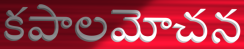
కపాలమోచన